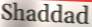
Shaddad